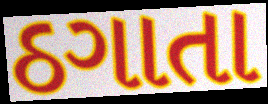
ઠગાતા